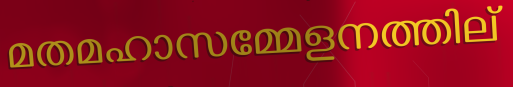
മതമഹാസമ്മേളനത്തില്